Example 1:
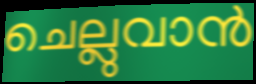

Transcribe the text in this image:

ചെല്ലുവാൻ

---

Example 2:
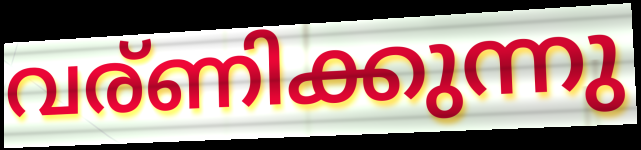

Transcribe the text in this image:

വര്ണിക്കുന്നു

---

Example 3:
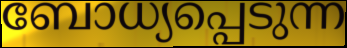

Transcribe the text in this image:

ബോധ്യപ്പെടുന്ന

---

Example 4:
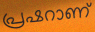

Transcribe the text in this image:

പ്രഷറാണ്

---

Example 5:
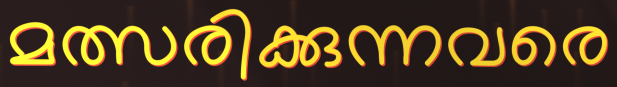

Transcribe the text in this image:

മത്സരിക്കുന്നവരെ